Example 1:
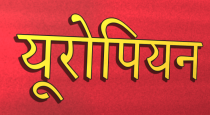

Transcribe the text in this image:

यूरोपियन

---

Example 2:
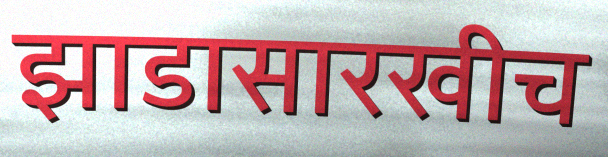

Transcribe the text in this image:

झाडासारखीच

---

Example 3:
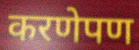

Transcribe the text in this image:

करणेपण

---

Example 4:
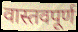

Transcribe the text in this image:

वास्तवपूर्ण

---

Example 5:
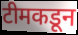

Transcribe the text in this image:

टीमकडून